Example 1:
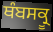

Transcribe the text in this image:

ਥੰਬਸਕ੍ਰੂ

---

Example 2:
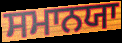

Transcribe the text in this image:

ਸਮਾਨਯਾ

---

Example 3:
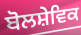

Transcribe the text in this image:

ਬੋਲਸ਼ੇਵਿਕ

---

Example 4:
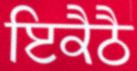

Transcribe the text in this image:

ਇਕੈਠੈ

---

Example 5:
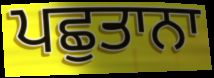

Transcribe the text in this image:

ਪਛੁਤਾਨਾ